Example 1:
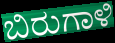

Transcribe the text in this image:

ಬಿರುಗಾಳಿ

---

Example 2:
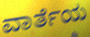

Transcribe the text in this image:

ವಾರ್ತೆಯ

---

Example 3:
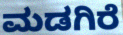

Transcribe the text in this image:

ಮಡಗಿರೆ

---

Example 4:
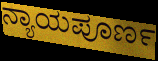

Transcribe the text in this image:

ನ್ಯಾಯಪೂರ್ಣ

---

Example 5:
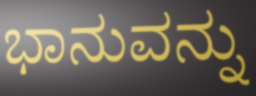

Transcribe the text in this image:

ಭಾನುವನ್ನು